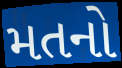
મતનો